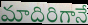
మాదిరిగానే